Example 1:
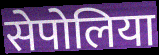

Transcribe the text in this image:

सेपोलिया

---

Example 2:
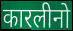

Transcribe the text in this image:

कारलीनो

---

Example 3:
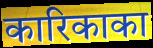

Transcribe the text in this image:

कारिकाका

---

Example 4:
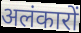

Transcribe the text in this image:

अलंकारों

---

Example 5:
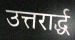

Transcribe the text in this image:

उत्तरार्द्ध